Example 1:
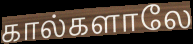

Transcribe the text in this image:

கால்களாலே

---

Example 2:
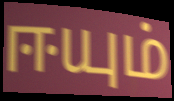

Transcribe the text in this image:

ஈயும்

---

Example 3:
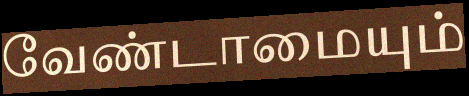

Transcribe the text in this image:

வேண்டாமையும்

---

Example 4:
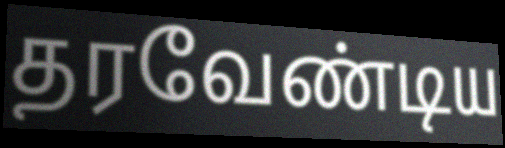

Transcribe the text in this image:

தரவேண்டிய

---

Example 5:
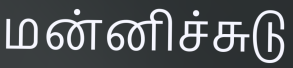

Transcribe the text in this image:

மன்னிச்சுடு